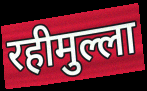
रहीमुल्ला